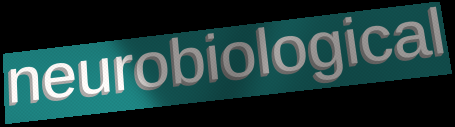
neurobiological